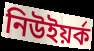
নিউইয়ৰ্ক